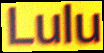
Lulu